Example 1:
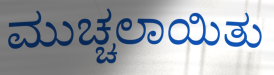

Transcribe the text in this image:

ಮುಚ್ಚಲಾಯಿತು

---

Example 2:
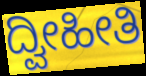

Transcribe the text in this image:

ದ್ವೀಹೀತಿ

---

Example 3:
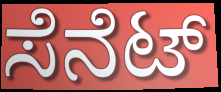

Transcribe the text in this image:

ಸೆನೆಟ್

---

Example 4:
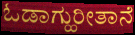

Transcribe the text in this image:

ಓಡಾಗ್ಹುರೀತಾನೆ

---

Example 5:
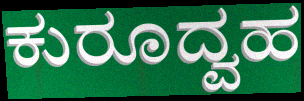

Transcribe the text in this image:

ಕುರೂದ್ವಹ